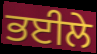
ਭਈਲੇ